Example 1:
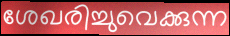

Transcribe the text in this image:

ശേഖരിച്ചുവെക്കുന്ന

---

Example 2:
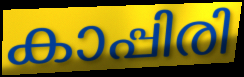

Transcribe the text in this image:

കാപ്പിരി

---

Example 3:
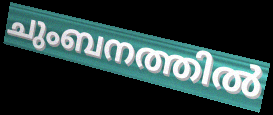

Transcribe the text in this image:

ചുംബനത്തിൽ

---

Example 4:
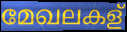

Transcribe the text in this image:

മേഖലകള്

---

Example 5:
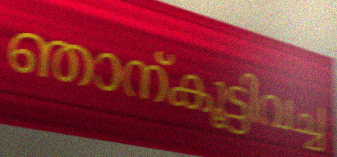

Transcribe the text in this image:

ഞാന്കൂട്ടിവച്ച